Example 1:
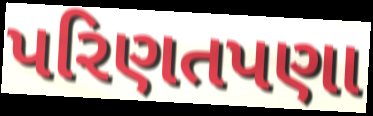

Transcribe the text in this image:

પરિણતપણા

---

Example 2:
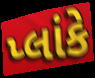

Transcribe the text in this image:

પ્લાંકે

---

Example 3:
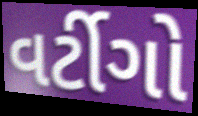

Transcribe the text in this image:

વર્ટીગો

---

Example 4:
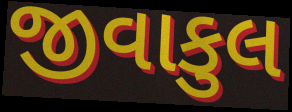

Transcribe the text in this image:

જીવાકુલ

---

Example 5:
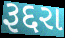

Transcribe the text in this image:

રૂદ્દરા